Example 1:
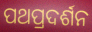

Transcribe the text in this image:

ପଥପ୍ରଦର୍ଶନ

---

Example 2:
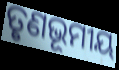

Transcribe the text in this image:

ତୃଣଭୂମୀୟ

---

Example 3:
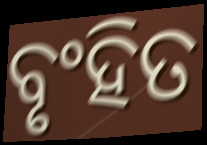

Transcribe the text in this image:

ବୃଂହିତ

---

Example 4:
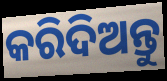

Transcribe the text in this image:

କରିଦିଅନ୍ତୁ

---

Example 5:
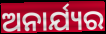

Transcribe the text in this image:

ଅନାର୍ଯ୍ୟର